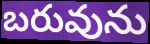
బరువును